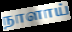
நாளாய்